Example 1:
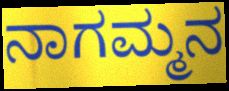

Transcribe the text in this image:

ನಾಗಮ್ಮನ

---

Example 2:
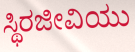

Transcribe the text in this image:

ಸ್ಥಿರಜೀವಿಯು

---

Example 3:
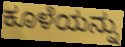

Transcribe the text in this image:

ಕೂಳೆಯನ್ನು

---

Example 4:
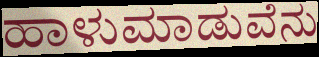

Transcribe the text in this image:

ಹಾಳುಮಾಡುವೆನು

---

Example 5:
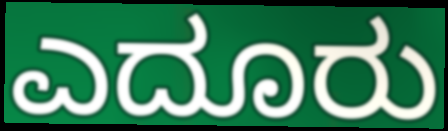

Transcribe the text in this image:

ಎದೂರು